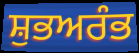
ਸ਼ੁਭਅਰੰਭ